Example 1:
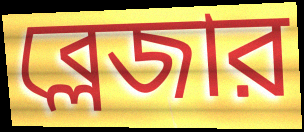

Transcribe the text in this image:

ব্লেজার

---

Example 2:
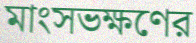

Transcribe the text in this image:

মাংসভক্ষণের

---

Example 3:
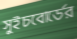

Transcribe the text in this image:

সুইচবোর্ডের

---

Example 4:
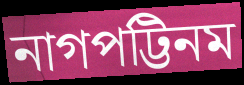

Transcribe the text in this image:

নাগপট্টিনম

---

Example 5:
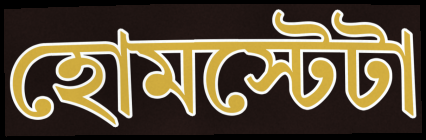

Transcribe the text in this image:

হোমস্টেটা